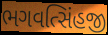
ભગવત્સિંહજી